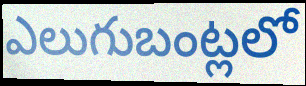
ఎలుగుబంట్లలో